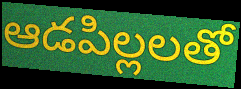
ఆడపిల్లలతో